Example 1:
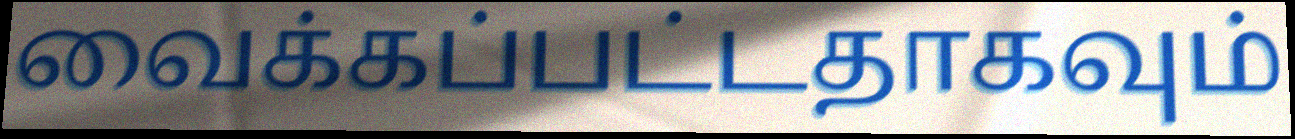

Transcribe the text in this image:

வைக்கப்பட்டதாகவும்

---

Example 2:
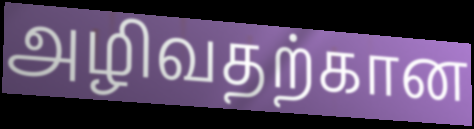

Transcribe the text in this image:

அழிவதற்கான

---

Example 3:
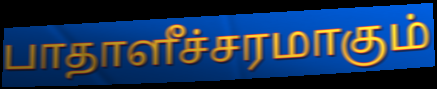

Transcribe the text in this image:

பாதாளீச்சரமாகும்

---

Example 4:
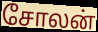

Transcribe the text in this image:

சோலன்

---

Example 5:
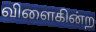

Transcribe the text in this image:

விளைகின்ற